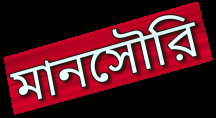
মানসৌরি